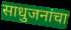
साधुजनांचा